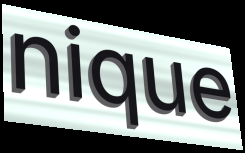
nique